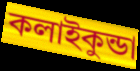
কলাইকুন্ডা